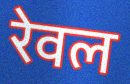
रेवल